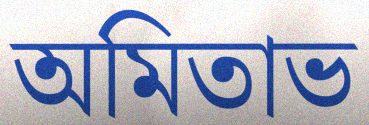
অমিতাভ